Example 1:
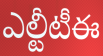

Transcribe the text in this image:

ఎల్టీటీఈ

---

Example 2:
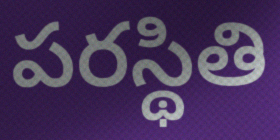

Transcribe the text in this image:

పరస్థితి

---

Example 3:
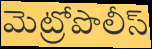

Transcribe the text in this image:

మెట్రోపొలీస్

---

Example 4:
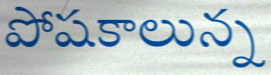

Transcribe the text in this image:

పోషకాలున్న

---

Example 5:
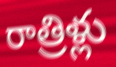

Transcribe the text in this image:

రాత్రిళ్లు